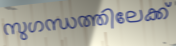
സുഗന്ധത്തിലേക്ക്